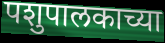
पशुपालकाच्या